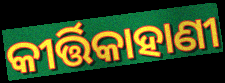
କୀର୍ତ୍ତିକାହାଣୀ